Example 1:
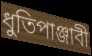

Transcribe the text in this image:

ধুতিপাঞ্জাবী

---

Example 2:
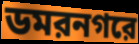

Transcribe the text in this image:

ডমরনগরে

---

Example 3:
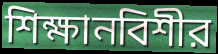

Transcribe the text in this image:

শিক্ষানবিশীর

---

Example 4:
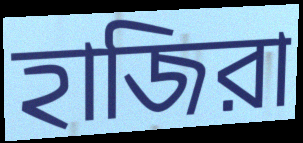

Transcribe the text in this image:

হাজিরা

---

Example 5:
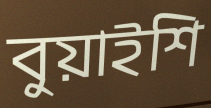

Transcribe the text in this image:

বুয়াইশি